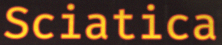
Sciatica